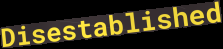
Disestablished